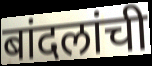
बांदलांची